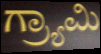
ಗ್ರ್ಯಾಮಿ